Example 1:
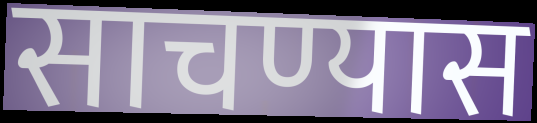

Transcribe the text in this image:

साचण्यास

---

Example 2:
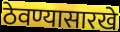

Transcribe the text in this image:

ठेवण्यासारखे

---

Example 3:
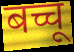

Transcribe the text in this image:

बच्चू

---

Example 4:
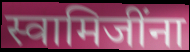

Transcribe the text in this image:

स्वामिजींना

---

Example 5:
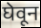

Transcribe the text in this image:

घेवून